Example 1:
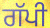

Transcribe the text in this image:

ਗੱਪੀ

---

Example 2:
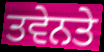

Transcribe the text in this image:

ਤਵੇਨਤੇ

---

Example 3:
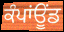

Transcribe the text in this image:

ਕੰਪਾਂਊਂਡ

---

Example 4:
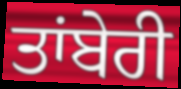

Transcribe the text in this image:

ਤਾਂਬੇਰੀ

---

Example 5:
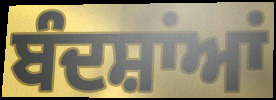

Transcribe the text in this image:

ਬੰਦਸ਼ਾਂਆਂ